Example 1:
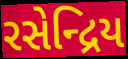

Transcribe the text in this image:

રસેન્દ્રિય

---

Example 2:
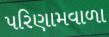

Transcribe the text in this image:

પરિણામવાળા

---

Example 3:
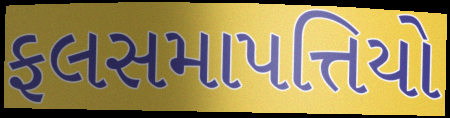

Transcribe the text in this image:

ફલસમાપત્તિયો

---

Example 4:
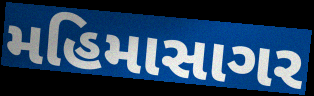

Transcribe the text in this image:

મહિમાસાગર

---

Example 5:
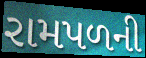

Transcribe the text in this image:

રામપળની